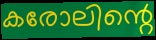
കരോലിന്റെ